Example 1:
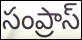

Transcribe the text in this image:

సంప్రాస్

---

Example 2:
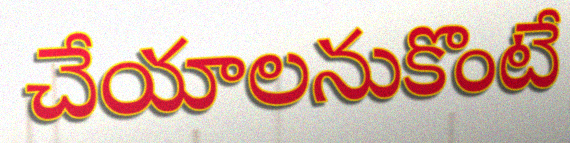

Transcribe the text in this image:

చేయాలనుకొంటే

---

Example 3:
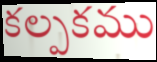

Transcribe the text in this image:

కల్పకము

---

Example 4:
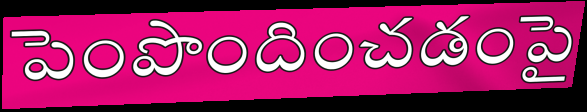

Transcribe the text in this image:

పెంపొందించడంపై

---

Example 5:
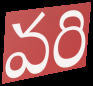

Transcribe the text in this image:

వరి